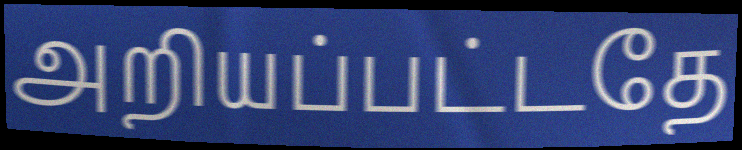
அறியப்பட்டதே